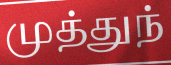
முத்துந்